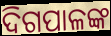
ଦିଗପାଳଙ୍କ